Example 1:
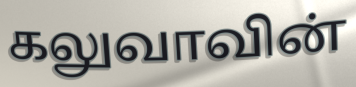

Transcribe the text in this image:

கலுவாவின்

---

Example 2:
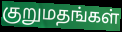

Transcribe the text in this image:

குறுமதங்கள்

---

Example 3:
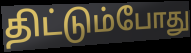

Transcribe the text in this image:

திட்டும்போது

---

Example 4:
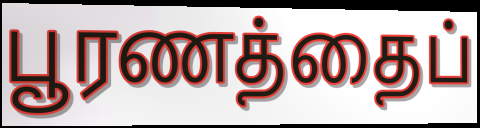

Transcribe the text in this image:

பூரணத்தைப்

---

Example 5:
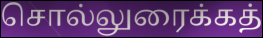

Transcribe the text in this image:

சொல்லுரைக்கத்